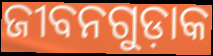
ଜୀବନଗୁଡ଼ାକ